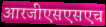
आरजीएसएसएच